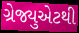
ગ્રેજ્યુએટથી